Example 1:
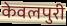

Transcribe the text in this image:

केवलपुरी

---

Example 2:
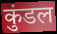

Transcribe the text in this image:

कुंडल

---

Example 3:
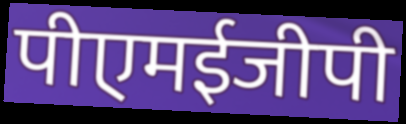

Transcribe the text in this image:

पीएमईजीपी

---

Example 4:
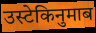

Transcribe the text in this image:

उस्टेकिनुमाब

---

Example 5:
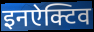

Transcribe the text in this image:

इनऐक्टिव